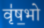
वृ॑ष॒भो